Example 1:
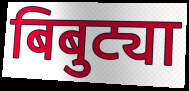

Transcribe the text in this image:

बिबुट्या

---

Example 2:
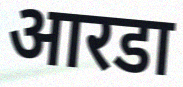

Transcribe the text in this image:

आरडा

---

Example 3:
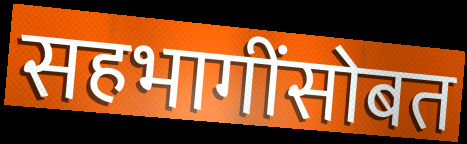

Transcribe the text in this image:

सहभागींसोबत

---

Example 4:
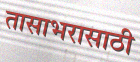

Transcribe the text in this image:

तासाभरासाठी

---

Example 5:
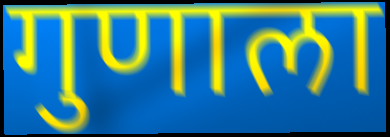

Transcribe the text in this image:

गुणाला